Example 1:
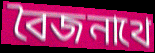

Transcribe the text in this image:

বৈজনাথে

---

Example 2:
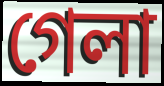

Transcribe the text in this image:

গেলা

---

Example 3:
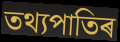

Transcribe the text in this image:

তথ্যপাতিৰ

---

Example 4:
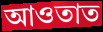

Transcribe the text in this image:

আওতাত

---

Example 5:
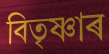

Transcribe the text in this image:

বিতৃষ্ণাৰ